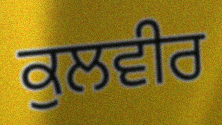
ਕੁਲਵੀਰ